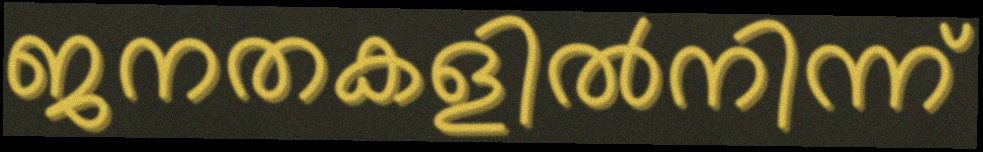
ജനതകളിൽനിന്ന്